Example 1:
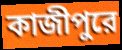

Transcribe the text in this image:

কাজীপুরে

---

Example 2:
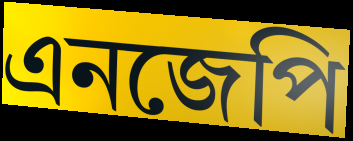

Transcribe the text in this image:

এনজেপি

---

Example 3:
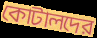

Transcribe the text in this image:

কোটালদের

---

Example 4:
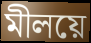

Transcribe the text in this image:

মীলয়ে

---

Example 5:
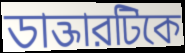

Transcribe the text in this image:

ডাক্তারটিকে